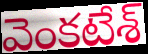
వెంకటేశ్